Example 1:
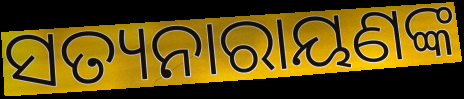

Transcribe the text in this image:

ସତ୍ୟନାରାୟଣଙ୍କ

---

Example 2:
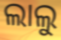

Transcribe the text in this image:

ଲାଲୁ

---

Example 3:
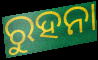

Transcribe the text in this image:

ରୁହନା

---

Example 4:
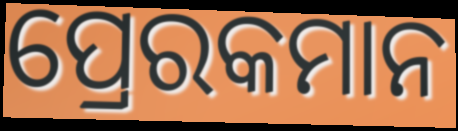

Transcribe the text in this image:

ପ୍ରେରକମାନ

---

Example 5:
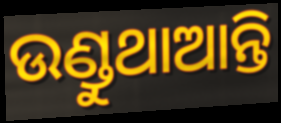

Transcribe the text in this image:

ଉଣ୍ଡୁଥାଆନ୍ତି